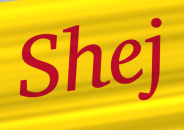
Shej